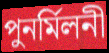
পুনর্মিলনী